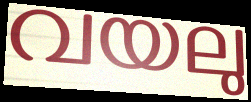
വയലു